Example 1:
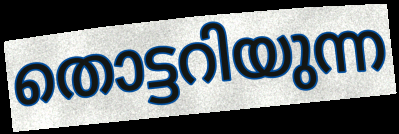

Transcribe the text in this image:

തൊട്ടറിയുന്ന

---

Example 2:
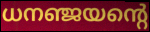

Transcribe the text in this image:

ധനഞ്ജയന്റെ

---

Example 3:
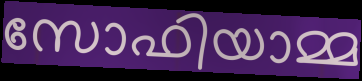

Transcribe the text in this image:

സോഫിയാമ്മ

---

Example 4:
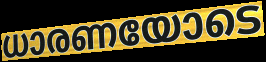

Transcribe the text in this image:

ധാരണയോടെ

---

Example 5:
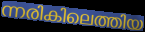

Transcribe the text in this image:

ന്നരികിലെത്തിയ